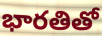
భారతితో